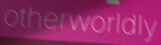
otherworldly